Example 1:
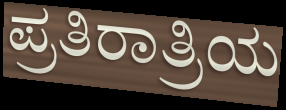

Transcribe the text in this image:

ಪ್ರತಿರಾತ್ರಿಯ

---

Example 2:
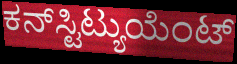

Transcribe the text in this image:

ಕನ್‌ಸ್ಟಿಟ್ಯುಯೆಂಟ್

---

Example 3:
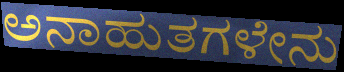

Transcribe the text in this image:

ಅನಾಹುತಗಳೇನು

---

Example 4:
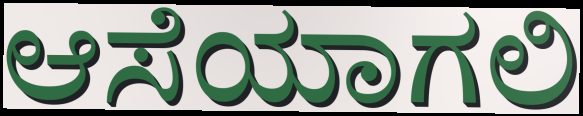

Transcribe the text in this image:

ಆಸೆಯಾಗಲಿ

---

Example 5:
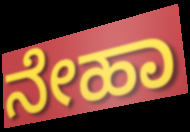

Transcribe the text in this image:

ನೇಹಾ